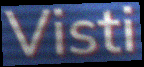
Visti